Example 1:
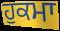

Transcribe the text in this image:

ਹੁਕਮਾ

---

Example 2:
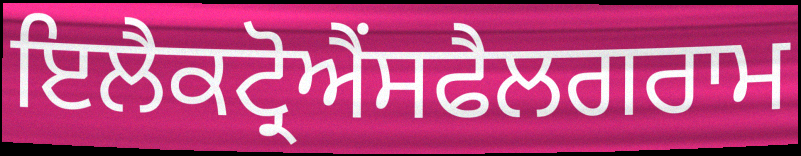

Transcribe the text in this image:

ਇਲੈਕਟ੍ਰੋਐਂਸਫੈਲਗਰਾਮ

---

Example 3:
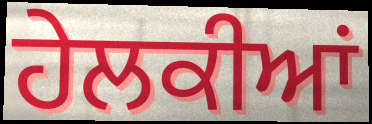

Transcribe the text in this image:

ਹੇਲਕੀਆਂ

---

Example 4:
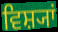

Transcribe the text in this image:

ਵਿਸ਼੍ਯਾਂ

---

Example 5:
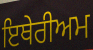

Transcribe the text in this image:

ਇਥੇਰੀਅਮ